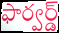
ఫార్వర్డ్